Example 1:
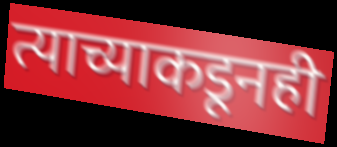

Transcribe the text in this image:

त्याच्याकडूनही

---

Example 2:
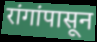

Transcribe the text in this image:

रांगांपासून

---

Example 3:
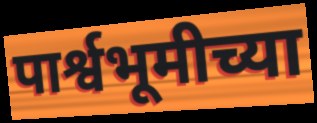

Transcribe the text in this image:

पार्श्वभूमीच्या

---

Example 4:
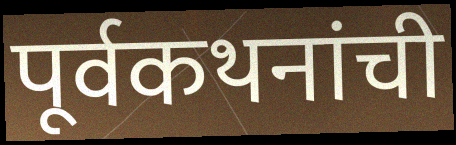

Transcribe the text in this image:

पूर्वकथनांची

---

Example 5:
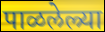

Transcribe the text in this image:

पाळलेल्या